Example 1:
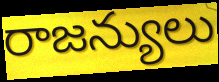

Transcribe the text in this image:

రాజన్యులు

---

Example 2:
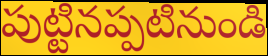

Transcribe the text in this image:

పుట్టినప్పటినుండి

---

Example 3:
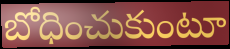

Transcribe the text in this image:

బోధించుకుంటూ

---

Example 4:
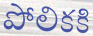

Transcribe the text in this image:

పోలికకి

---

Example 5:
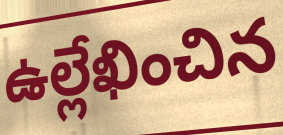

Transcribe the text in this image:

ఉల్లేఖించిన